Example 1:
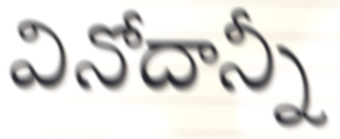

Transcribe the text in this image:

వినోదాన్నీ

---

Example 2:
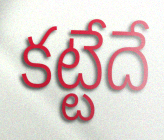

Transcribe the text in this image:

కట్టేదే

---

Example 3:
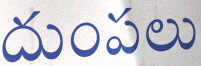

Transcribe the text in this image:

దుంపలు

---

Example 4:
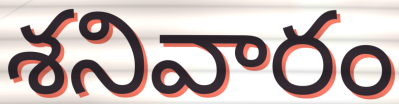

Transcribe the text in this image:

శనివారం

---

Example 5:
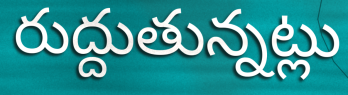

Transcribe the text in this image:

రుద్దుతున్నట్లు